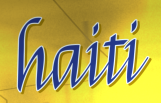
haiti